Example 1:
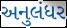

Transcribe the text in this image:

અનુલંધર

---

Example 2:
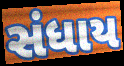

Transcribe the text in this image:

સંધાય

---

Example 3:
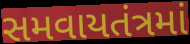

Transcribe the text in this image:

સમવાયતંત્રમાં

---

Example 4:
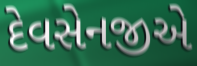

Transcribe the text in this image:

દેવસેનજીએ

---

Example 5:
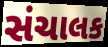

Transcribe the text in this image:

સંચાલક